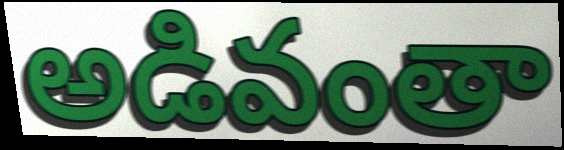
అడివంతా